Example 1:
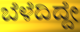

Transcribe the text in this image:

ಬೆಳೆದಿದ್ದೇ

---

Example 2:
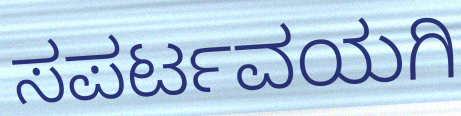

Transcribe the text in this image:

ಸಪರ್ಟವಯಗಿ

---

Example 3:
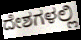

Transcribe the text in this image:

ದೇಶಗಳಲ್ಲಿ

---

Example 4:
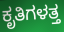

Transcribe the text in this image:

ಕೃತಿಗಳತ್ತ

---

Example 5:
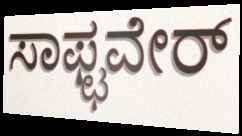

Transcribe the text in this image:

ಸಾಫ್ಟವೇರ್